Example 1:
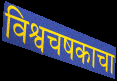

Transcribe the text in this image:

विश्वचषकाचा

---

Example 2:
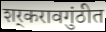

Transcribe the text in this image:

शर्करावगुंठीत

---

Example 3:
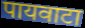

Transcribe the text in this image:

पायवाटा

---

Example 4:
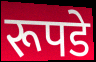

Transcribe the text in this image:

रूपडे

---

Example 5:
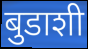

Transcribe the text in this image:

बुडाशी